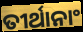
ତୀର୍ଥାନାଂ